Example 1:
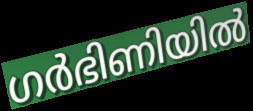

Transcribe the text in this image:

ഗർഭിണിയിൽ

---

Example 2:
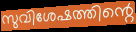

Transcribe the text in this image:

സുവിശേഷത്തിന്റെ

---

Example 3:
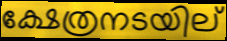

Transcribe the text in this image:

ക്ഷേത്രനടയില്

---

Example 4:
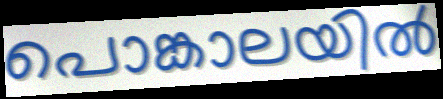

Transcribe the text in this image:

പൊങ്കാലയിൽ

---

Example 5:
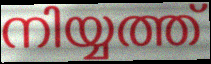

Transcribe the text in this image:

നിയ്യത്ത്